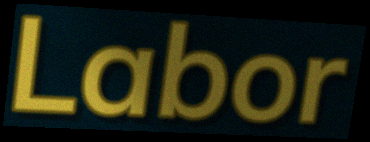
Labor